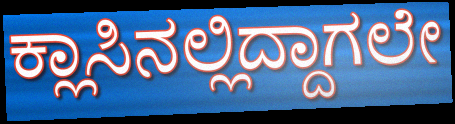
ಕ್ಲಾಸಿನಲ್ಲಿದ್ದಾಗಲೇ